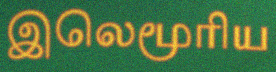
இலெமூரிய